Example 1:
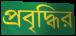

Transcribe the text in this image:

প্রবৃদ্ধির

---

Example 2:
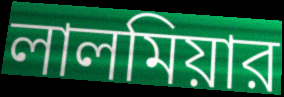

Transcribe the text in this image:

লালমিয়ার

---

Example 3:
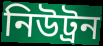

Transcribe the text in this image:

নিউট্রন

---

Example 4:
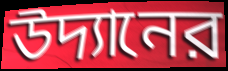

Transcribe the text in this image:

উদ্যানের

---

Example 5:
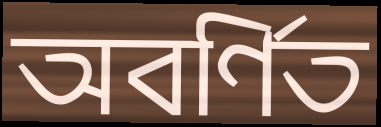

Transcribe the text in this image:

অবর্ণিত